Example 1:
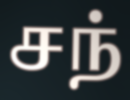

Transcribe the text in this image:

சந்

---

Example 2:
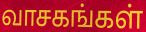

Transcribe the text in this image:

வாசகங்கள்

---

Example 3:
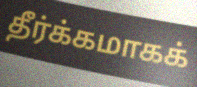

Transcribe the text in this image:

தீர்க்கமாகக்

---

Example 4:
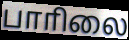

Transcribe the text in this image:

பாரிலை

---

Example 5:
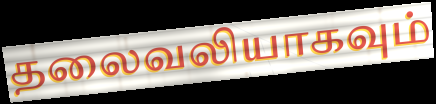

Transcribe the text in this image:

தலைவலியாகவும்